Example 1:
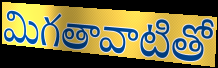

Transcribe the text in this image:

మిగతావాటితో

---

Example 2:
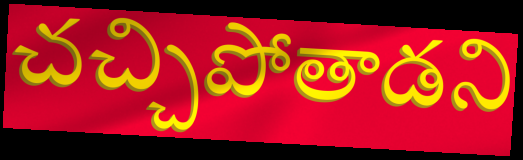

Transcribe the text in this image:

చచ్చిపోతాడని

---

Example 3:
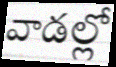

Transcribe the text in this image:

వాడల్లో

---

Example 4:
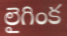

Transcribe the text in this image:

లైగింక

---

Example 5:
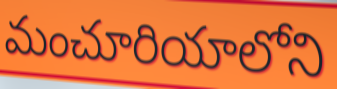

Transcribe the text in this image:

మంచూరియాలోని